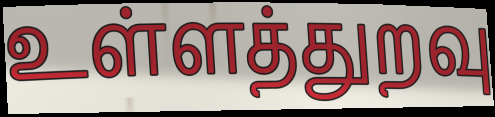
உள்ளத்துறவு